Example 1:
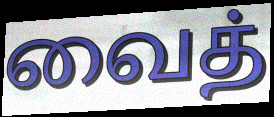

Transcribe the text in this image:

வைத்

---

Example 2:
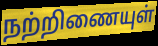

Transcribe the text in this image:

நற்றிணையுள்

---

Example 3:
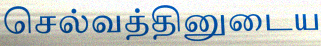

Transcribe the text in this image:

செல்வத்தினுடைய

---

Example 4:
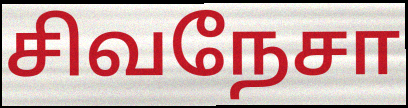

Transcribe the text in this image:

சிவநேசா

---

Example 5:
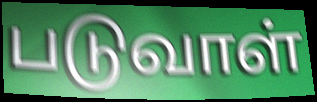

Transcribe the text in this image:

படுவாள்